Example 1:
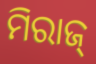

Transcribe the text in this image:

ମିରାଜ୍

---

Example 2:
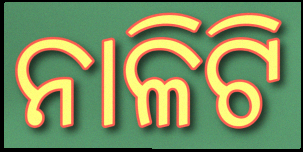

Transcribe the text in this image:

ନାଳିଟି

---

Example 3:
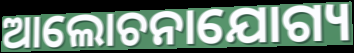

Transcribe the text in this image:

ଆଲୋଚନାଯୋଗ୍ୟ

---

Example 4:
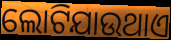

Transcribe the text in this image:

ଲୋଟିଯାଉଥାଏ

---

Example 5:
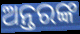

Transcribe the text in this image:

ଅନ୍ତରଙ୍କ